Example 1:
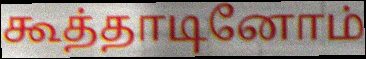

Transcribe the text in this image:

கூத்தாடினோம்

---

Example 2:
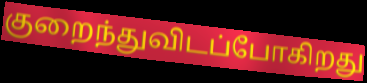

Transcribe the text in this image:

குறைந்துவிடப்போகிறது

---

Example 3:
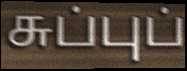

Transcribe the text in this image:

சுப்புப்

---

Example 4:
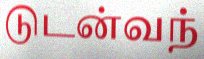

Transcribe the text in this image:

டுடன்வந்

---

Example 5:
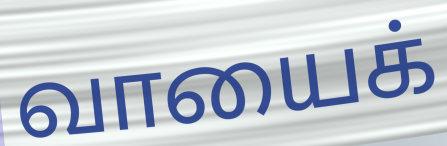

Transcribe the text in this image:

வாயைக்